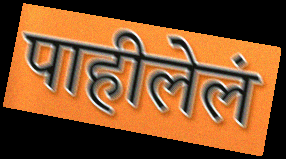
पाहीलेलं